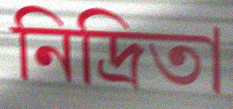
নিদ্রিতা